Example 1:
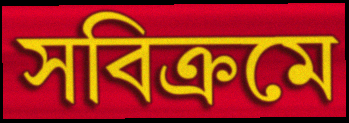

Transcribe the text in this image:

সবিক্রমে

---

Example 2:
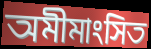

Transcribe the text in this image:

অমীমাংসিত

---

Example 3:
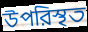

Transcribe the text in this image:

উপরিস্থত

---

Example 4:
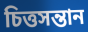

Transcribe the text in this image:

চিত্তসন্তান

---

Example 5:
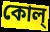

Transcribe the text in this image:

কোল্